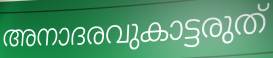
അനാദരവുകാട്ടരുത്